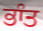
ਭਾੰਤ